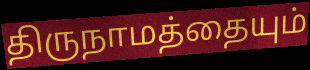
திருநாமத்தையும்